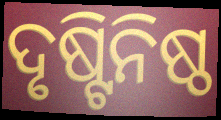
ଦୃଷ୍ଟିନିଷ୍ଠ